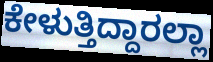
ಕೇಳುತ್ತಿದ್ದಾರಲ್ಲಾ